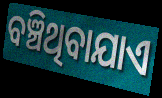
ବଞ୍ଚିଥିବାଯାଏ